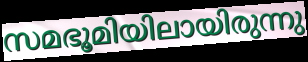
സമഭൂമിയിലായിരുന്നു